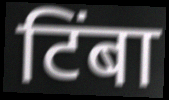
टिंबा